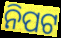
ନିପଟ